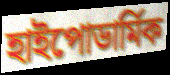
হাইপোডার্মিক